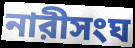
নারীসংঘ